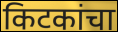
किटकांचा